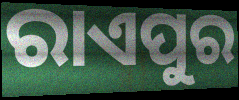
ରାଏପୁର